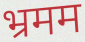
भ्रमम